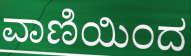
ವಾಣಿಯಿಂದ